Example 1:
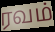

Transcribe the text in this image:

ரவம்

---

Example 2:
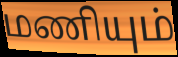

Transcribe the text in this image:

மணியும்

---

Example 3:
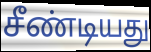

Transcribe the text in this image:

சீண்டியது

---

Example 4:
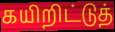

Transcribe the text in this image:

கயிறிட்டுத்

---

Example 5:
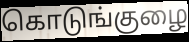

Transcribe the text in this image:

கொடுங்குழை